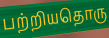
பற்றியதொரு